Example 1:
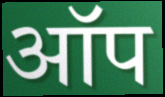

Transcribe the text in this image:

ऑप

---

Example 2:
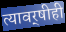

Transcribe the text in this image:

त्यावर्षीही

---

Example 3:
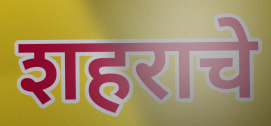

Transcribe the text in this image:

शहराचे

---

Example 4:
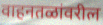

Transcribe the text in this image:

वाहनतळांवरील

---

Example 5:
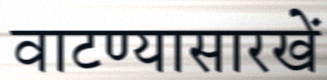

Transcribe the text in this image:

वाटण्यासारखें